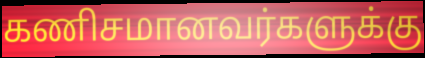
கணிசமானவர்களுக்கு